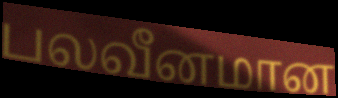
பலவீனமான